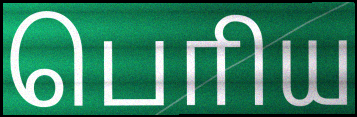
பெரிய